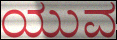
ಯುವ